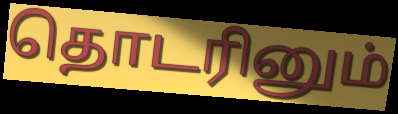
தொடரினும்